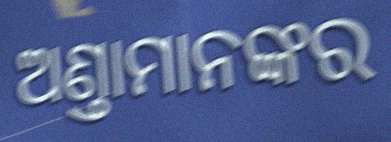
ଅଣ୍ତାମାନଙ୍କର